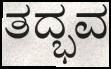
ತದ್ಭವ